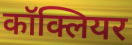
कॉक्लियर